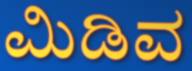
ಮಿಡಿವ